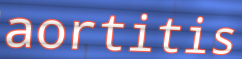
aortitis